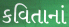
કવિતાનાં